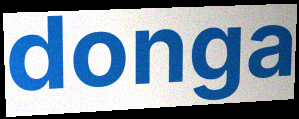
donga